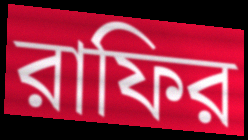
রাফির